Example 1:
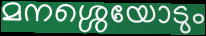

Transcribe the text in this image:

മനശ്ശെയോടും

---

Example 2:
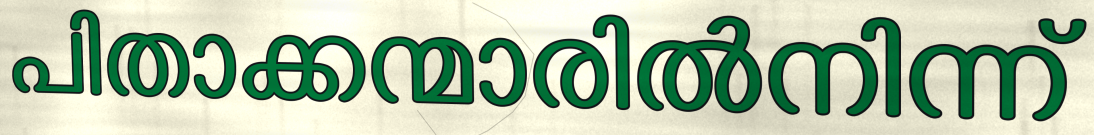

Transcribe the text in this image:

പിതാക്കന്മാരിൽനിന്ന്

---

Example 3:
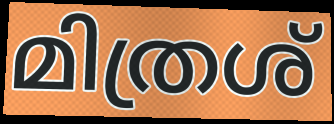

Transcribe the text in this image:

മിത്രശ്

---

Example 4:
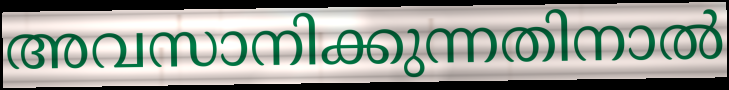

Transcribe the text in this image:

അവസാനിക്കുന്നതിനാൽ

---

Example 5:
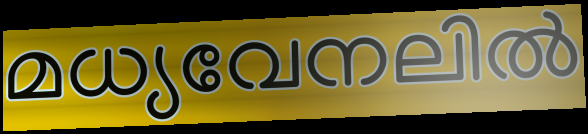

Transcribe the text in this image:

മധ്യവേനലിൽ